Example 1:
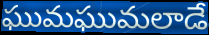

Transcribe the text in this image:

ఘుమఘుమలాడే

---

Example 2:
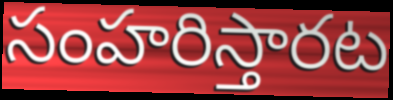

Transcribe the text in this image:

సంహరిస్తారట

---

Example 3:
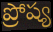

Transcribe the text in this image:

ప్రోష్య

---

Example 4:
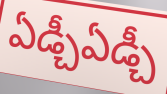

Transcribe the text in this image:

ఏడ్చీఏడ్చీ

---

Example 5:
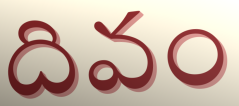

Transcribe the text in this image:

దివం